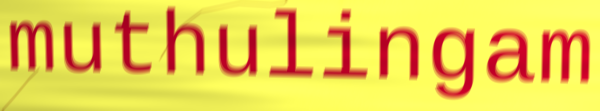
muthulingam